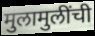
मुलामुलींची